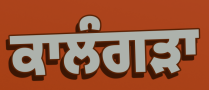
ਕਾਲੰਗੜਾ